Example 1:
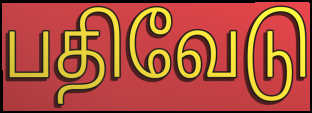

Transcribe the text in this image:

பதிவேடு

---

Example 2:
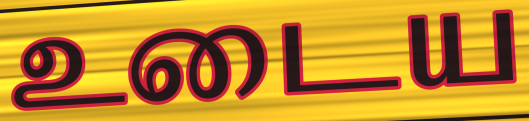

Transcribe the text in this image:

உடைய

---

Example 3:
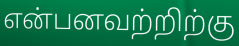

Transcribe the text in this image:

என்பனவற்றிற்கு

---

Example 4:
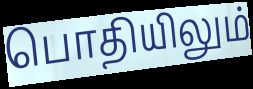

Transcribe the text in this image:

பொதியிலும்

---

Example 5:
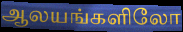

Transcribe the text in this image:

ஆலயங்களிலோ